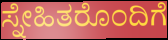
ಸ್ನೇಹಿತರೊಂದಿಗೆ